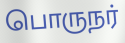
பொருநர்